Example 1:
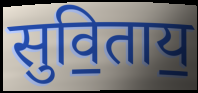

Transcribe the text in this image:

सुवि॒ताय॒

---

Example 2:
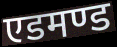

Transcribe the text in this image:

एडमण्ड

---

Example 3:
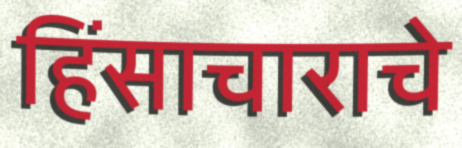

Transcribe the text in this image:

हिंसाचाराचे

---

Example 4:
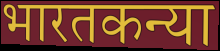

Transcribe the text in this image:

भारतकन्या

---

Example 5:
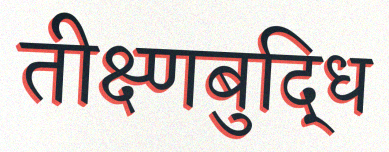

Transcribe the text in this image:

तीक्ष्णबुद्धि